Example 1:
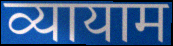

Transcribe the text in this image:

व्यायाम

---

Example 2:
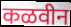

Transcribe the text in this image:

कळवीन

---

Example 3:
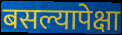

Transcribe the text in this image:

बसल्यापेक्षा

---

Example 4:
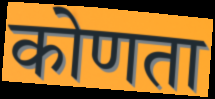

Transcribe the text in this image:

कोणता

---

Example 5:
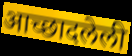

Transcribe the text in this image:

आच्छादलेली